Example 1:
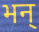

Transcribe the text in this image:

भन्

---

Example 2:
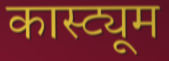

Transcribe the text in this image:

कास्ट्यूम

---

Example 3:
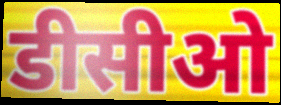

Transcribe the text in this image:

डीसीओ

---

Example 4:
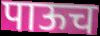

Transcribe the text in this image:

पाऊच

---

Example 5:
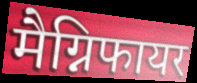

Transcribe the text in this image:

मैग्निफायर